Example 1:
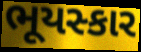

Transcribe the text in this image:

ભૂયસ્કાર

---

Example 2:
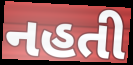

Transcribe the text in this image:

નહતી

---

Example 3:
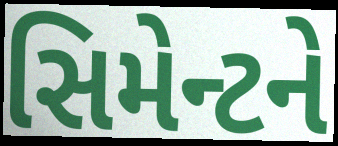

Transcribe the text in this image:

સિમેન્ટને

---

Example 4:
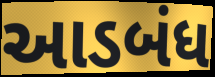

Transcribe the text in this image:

આડબંધ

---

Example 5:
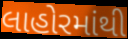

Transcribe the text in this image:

લાહોરમાંથી